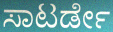
ಸಾಟರ್ಡೇ